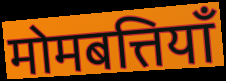
मोमबत्तियाँ